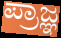
ಪ್ರಾಜ್ಞ